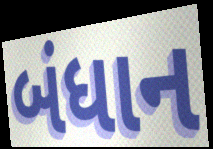
બંધાન